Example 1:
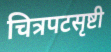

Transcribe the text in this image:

चित्रपटसृष्टी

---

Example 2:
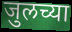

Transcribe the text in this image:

जुलच्या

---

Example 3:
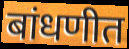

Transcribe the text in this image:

बांधणीत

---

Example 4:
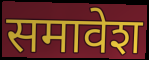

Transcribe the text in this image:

समावेश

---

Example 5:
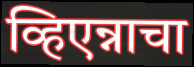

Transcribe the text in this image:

व्हिएन्नाचा